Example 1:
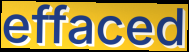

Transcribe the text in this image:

effaced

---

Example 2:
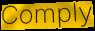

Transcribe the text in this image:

Comply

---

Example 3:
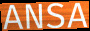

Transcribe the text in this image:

ANSA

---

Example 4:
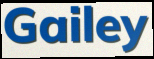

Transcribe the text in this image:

Gailey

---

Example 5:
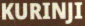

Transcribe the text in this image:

KURINJI